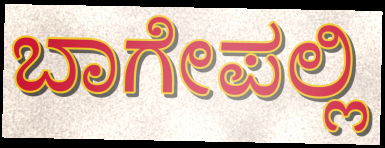
ಬಾಗೇಪಲ್ಲಿ